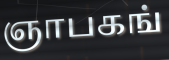
ஞாபகங்